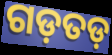
ଗଡ଼ତଡ଼